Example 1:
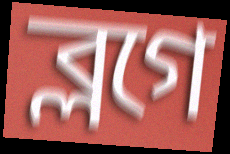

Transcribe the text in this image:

ব্লগে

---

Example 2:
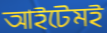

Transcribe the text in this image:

আইটেমই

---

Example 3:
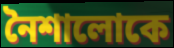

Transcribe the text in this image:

নৈশালোকে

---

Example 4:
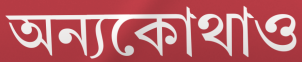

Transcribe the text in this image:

অন্যকোথাও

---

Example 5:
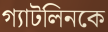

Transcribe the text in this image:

গ্যাটলিনকে